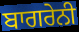
ਬਾਗਰੇਨੀ